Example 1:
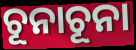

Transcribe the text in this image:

ଚୂନାଚୂନା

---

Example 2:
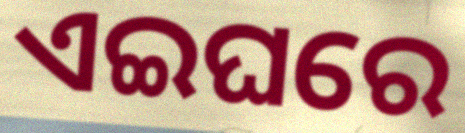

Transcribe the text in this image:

ଏଇଘରେ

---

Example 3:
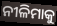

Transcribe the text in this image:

ନୀଳିମାକୁ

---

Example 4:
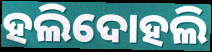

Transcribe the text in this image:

ହଲିଦୋହଲି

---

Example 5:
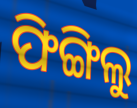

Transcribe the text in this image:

ଫିଙ୍ଗିଲୁ